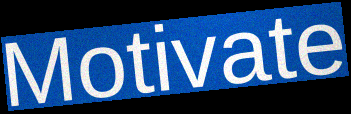
Motivate